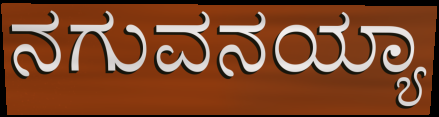
ನಗುವನಯ್ಯಾ